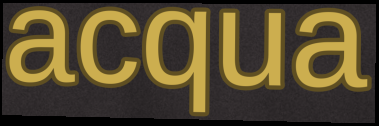
acqua